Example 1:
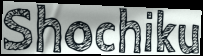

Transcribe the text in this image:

Shochiku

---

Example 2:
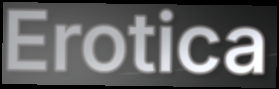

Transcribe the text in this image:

Erotica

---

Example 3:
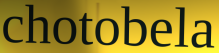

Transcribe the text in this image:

chotobela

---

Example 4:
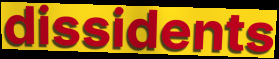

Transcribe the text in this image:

dissidents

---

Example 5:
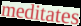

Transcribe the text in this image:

meditates